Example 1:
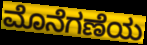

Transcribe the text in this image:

ಮೊನೆಗಣೆಯ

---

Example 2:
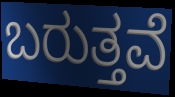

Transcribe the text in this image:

ಬರುತ್ತವೆ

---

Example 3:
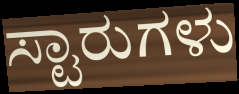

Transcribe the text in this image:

ಸ್ಟಾರುಗಳು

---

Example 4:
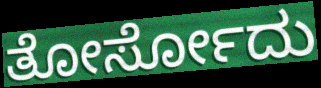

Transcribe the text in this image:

ತೋರ್ಸೋದು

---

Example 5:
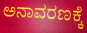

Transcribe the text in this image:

ಅನಾವರಣಕ್ಕೆ